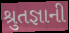
શ્રુતજ્ઞાની